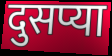
दुसप्या